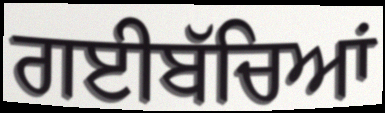
ਗਈਬੱਚਿਆਂ